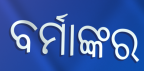
ବର୍ମାଙ୍କର